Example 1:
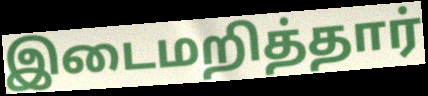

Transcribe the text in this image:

இடைமறித்தார்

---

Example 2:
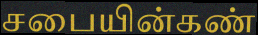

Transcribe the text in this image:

சபையின்கண்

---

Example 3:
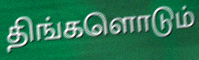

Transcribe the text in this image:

திங்களொடும்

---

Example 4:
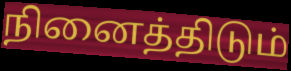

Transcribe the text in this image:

நினைத்திடும்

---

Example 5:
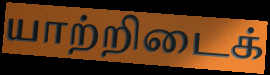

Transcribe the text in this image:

யாற்றிடைக்